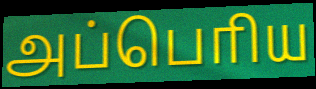
அப்பெரிய